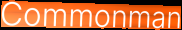
Commonman